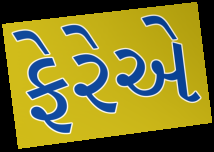
ફેરેએ